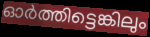
ഓർത്തിട്ടെങ്കിലും